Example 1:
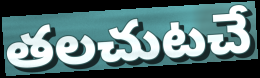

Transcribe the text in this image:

తలచుటచే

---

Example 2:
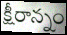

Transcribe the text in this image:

క్షీరాన్నం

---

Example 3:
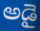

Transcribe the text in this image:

అడై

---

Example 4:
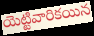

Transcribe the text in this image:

యెట్టివారికయిన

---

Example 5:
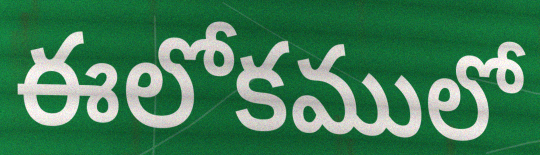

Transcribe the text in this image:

ఈలోకములో